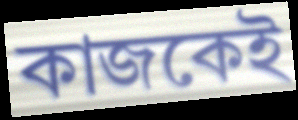
কাজকেই